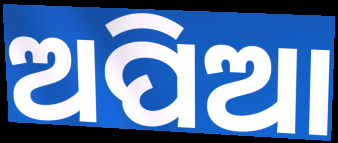
ଅପିଆ